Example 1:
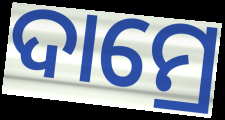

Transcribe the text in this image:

ଦାମ୍ରେ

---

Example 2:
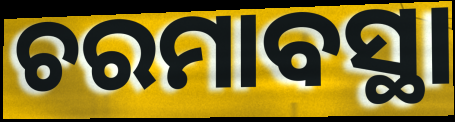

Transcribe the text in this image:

ଚରମାବସ୍ଥା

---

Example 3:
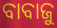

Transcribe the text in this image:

ବାବାଜୁ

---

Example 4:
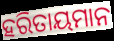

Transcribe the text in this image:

ହରିତାୟମାନ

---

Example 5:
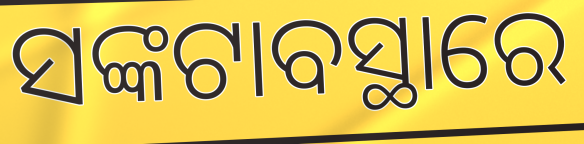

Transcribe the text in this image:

ସଙ୍କଟାବସ୍ଥାରେ